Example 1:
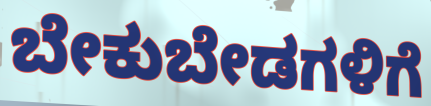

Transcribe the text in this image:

ಬೇಕುಬೇಡಗಳಿಗೆ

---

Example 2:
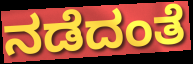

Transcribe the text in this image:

ನಡೆದಂತೆ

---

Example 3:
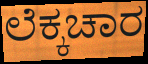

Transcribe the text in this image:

ಲೆಕ್ಕಚಾರ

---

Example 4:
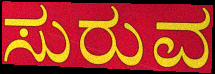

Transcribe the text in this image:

ಸುರುವ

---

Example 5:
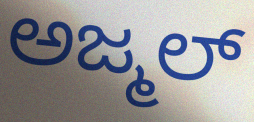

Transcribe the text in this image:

ಅಜ್ಮಲ್